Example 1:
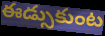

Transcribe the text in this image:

ఈడ్సుకుంట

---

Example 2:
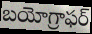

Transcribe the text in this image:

బయోగ్రాఫర్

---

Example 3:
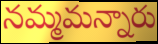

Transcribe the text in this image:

నమ్మమన్నారు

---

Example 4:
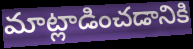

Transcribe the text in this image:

మాట్లాడించడానికి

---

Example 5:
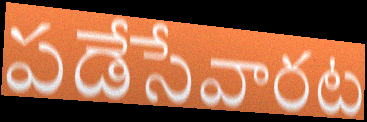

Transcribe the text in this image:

పడేసేవారట